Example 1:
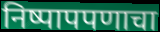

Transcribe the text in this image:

निष्पापपणाचा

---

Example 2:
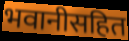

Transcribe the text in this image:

भवानीसहित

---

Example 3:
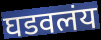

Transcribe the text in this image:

घडवलंय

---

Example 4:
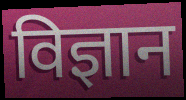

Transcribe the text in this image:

विज्ञान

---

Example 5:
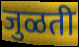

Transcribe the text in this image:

जुळती